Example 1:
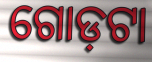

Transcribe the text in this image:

ଗୋଡ଼ଟା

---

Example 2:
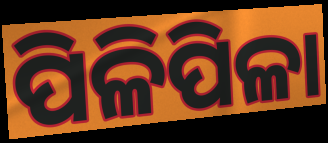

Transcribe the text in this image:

ପିଳିପିଳା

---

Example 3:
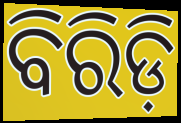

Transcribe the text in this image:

ବିରିଡ଼ି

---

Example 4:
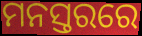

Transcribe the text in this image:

ମନସ୍ତରରେ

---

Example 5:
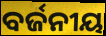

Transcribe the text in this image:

ବର୍ଜନୀୟ